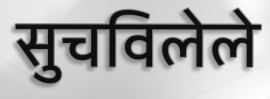
सुचविलेले